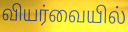
வியர்வையில்